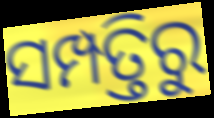
ସମ୍ପତ୍ତିରୁ